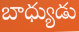
బాధ్యుడు